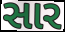
સાર